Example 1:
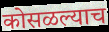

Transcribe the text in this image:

कोसळल्याच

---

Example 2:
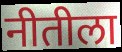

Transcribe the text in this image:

नीतीला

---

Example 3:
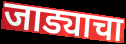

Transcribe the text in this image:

जाड्याचा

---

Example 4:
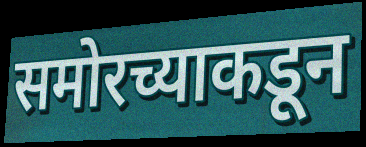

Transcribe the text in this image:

समोरच्याकडून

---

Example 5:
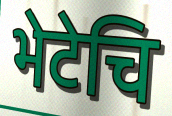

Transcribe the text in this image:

भेटेचि